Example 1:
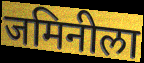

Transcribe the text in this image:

जमिनीला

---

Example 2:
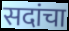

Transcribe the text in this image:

सदांचा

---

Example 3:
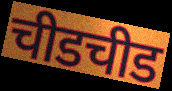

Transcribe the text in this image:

चीडचीड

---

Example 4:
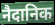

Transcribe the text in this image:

नैदानिक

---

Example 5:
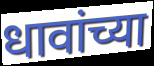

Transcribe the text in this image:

धावांच्या